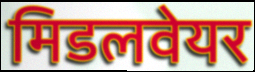
मिडलवेयर